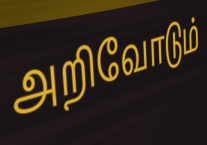
அறிவோடும்